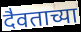
दैवताच्या